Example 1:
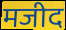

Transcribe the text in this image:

मजीद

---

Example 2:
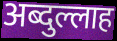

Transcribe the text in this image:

अब्दुल्लाह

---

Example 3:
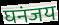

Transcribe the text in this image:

घनंजय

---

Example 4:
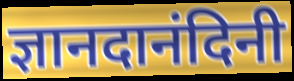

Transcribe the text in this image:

ज्ञानदानंदिनी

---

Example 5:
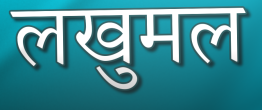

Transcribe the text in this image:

लखुमल